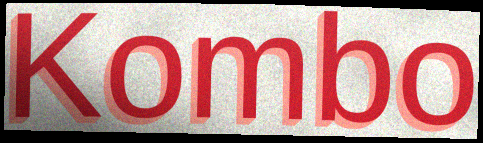
Kombo